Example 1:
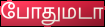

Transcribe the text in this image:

போதுமடா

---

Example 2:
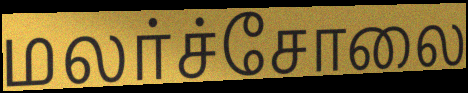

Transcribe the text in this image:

மலர்ச்சோலை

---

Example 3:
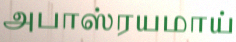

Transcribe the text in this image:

அபாஸ்ரயமாய்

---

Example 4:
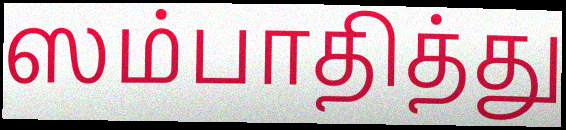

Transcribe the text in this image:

ஸம்பாதித்து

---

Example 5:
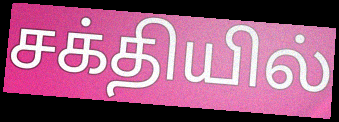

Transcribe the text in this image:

சக்தியில்